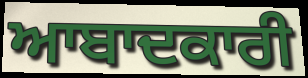
ਆਬਾਦਕਾਰੀ